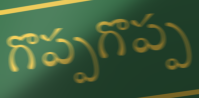
గొప్పగొప్ప